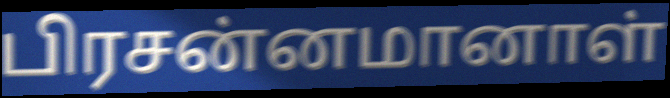
பிரசன்னமானாள்